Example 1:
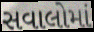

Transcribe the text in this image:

સવાલોમાં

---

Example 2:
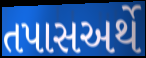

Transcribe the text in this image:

તપાસઅર્થે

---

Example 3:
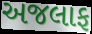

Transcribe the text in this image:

અજલાફ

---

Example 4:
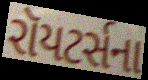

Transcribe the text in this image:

રૉયટર્સના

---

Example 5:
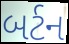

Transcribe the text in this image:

બર્ટન